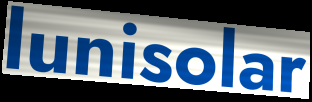
lunisolar